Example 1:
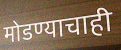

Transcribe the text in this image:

मोडण्याचाही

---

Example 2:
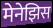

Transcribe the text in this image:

मेनेझिस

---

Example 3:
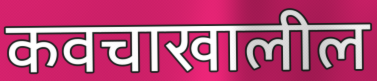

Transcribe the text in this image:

कवचाखालील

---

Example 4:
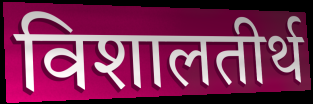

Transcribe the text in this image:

विशालतीर्थ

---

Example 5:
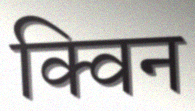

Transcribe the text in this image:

क्विन